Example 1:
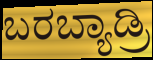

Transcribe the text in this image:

ಬರಬ್ಯಾಡ್ರಿ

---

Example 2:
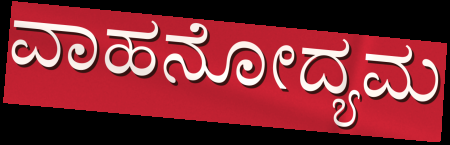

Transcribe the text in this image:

ವಾಹನೋದ್ಯಮ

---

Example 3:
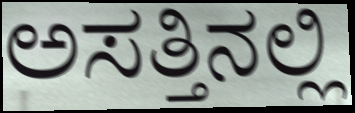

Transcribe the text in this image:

ಅಸತ್ತಿನಲ್ಲಿ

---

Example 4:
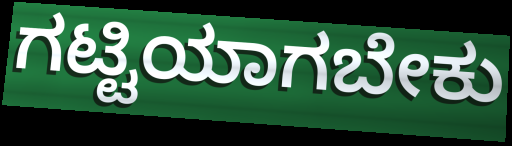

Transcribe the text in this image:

ಗಟ್ಟಿಯಾಗಬೇಕು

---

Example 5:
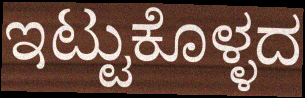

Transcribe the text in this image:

ಇಟ್ಟುಕೊಳ್ಳದ